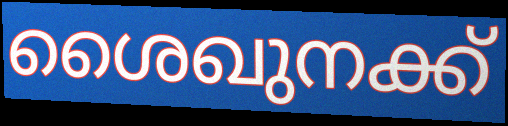
ശൈഖുനക്ക്